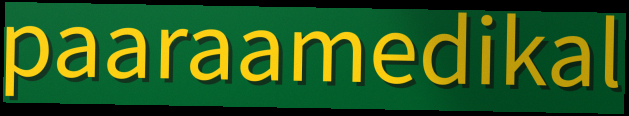
paaraamedikal